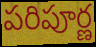
పరిపూర్ణ